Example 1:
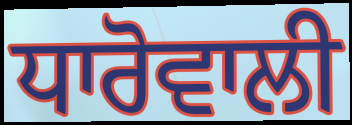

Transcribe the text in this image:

ਧਾਰੋਵਾਲੀ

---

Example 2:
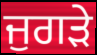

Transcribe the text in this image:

ਜੁਗੜੇ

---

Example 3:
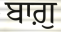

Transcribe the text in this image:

ਬਾਗ਼ੁ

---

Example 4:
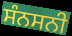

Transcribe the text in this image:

ਸੰਨਸਨੀ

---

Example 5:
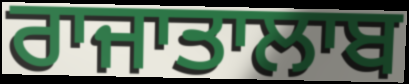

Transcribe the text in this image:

ਰਾਜਾਤਾਲਾਬ